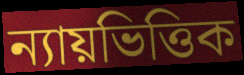
ন্যায়ভিত্তিক